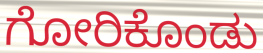
ಗೋರಿಕೊಂಡು